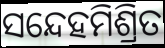
ସନ୍ଦେହମିଶ୍ରିତ